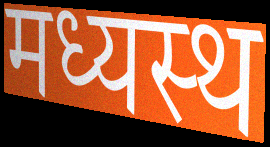
मध्यस्थ